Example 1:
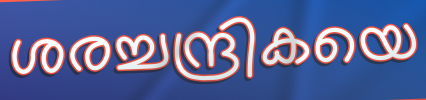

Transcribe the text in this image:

ശരച്ചന്ദ്രികയെ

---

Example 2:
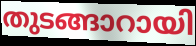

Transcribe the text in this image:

തുടങ്ങാറായി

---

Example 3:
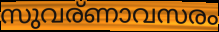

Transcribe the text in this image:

സുവര്ണാവസരം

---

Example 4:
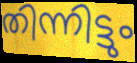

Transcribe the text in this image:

തിന്നിട്ടും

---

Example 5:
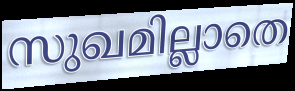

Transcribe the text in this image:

സുഖമില്ലാതെ